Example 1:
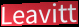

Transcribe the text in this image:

Leavitt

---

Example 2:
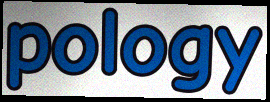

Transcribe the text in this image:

pology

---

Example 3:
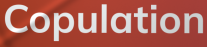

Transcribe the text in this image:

Copulation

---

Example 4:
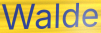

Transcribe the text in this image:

Walde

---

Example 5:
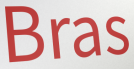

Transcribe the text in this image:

Bras